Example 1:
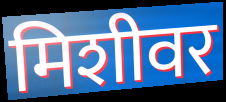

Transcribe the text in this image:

मिशीवर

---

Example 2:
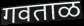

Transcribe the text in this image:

गवताळ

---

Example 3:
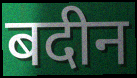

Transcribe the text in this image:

बदीन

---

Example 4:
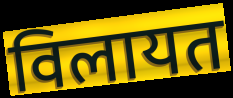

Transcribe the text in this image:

विलायत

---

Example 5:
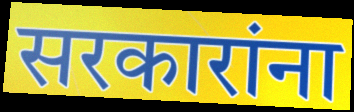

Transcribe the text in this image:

सरकारांना